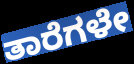
ತಾರೆಗಳೇ